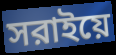
সরাইয়ে